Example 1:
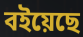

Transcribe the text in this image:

বইয়েছে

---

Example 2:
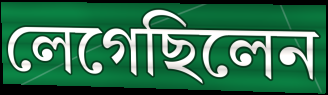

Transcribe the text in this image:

লেগেছিলেন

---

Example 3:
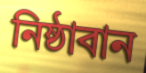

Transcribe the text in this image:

নিষ্ঠাবান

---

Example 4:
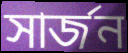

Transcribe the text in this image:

সার্জন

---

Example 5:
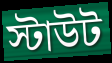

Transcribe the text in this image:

স্টাউট